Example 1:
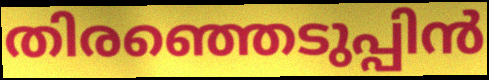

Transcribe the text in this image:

തിരഞ്ഞെടുപ്പിൻ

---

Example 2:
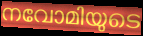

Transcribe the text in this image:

നവോമിയുടെ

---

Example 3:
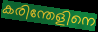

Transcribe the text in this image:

കരിന്തേളിനെ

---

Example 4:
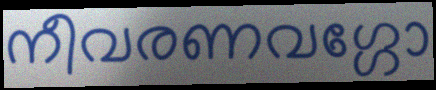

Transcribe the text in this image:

നീവരണവഗ്ഗോ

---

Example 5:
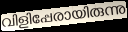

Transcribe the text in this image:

വിളിപ്പേരായിരുന്നു